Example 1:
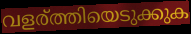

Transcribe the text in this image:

വളര്ത്തിയെടുക്കുക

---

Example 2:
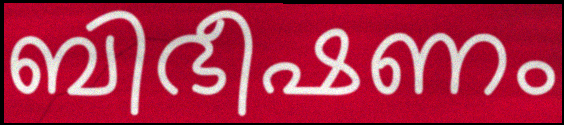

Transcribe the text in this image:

ബിഭീഷണം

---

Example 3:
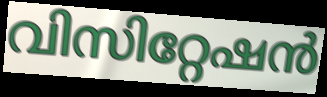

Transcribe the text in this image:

വിസിറ്റേഷൻ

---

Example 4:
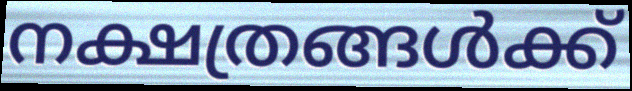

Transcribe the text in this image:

നക്ഷത്രങ്ങൾക്ക്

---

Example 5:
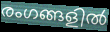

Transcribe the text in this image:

രംഗങ്ങളിൽ